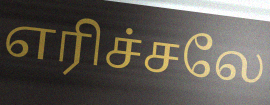
எரிச்சலே